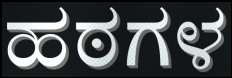
ಹಠಗಳ